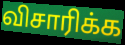
விசாரிக்க